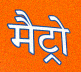
मैट्रो